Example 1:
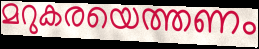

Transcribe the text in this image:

മറുകരയെത്തണം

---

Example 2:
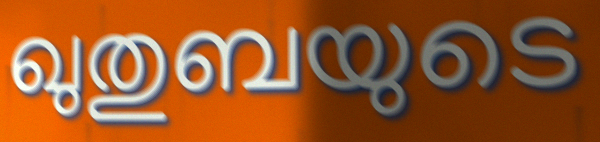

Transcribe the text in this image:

ഖുതുബയുടെ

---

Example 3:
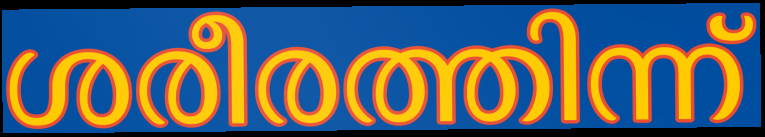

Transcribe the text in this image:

ശരീരത്തിന്ന്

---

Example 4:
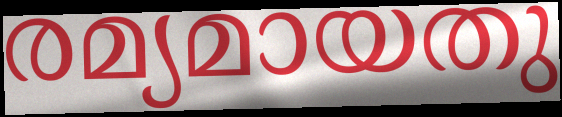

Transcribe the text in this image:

രമ്യമായതു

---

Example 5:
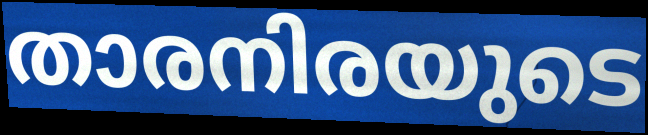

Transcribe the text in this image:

താരനിരയുടെ